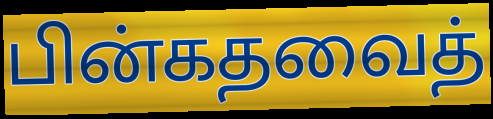
பின்கதவைத்